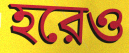
হরেও